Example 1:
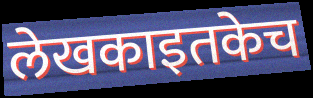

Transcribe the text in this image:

लेखकाइतकेच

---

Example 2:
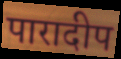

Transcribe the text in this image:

पारादीप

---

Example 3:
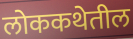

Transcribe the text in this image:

लोककथेतील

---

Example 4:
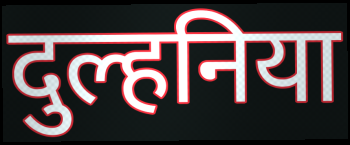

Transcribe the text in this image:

दुल्हनिया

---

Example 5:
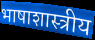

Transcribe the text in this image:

भाषाशास्त्रीय